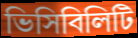
ভিসিবিলিটি